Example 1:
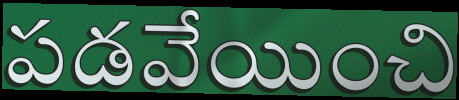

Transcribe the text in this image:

పడవేయించి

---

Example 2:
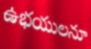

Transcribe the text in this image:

ఉభయులనూ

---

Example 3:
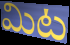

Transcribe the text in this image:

మిట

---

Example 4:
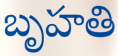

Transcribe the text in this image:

బృహతి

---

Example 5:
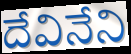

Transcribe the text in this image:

దేవినేని